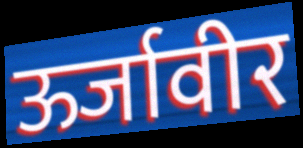
ऊर्जावीर